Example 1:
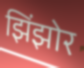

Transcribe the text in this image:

झिंझोर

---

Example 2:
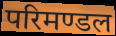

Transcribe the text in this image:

परिमण्डल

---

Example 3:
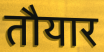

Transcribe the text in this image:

तौयार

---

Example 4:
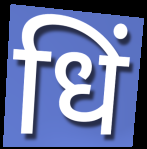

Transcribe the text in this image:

धिं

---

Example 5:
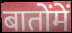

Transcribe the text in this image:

बातोंमें